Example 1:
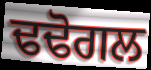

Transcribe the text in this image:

ਢਢੋਗਲ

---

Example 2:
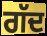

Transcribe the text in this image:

ਗੱਦ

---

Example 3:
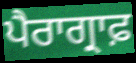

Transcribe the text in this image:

ਪੈਰਾਗ੍ਰਾਫ਼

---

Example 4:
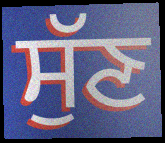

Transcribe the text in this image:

ਸੁੱਣ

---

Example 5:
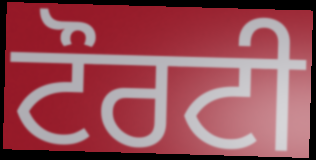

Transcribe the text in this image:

ਟੌਰਟੀ